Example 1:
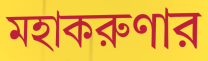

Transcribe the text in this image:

মহাকরুণার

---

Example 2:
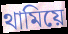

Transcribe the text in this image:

থামিয়ে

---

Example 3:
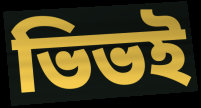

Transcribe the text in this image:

ভিভই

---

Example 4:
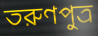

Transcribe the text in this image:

তরুণপুত্র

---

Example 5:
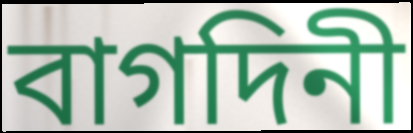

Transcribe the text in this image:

বাগদিনী